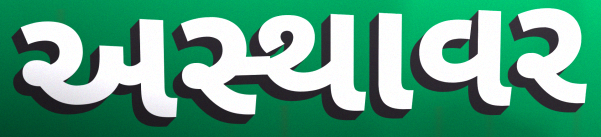
અસ્થાવર